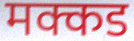
मक्कड